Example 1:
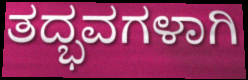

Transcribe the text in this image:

ತದ್ಭವಗಳಾಗಿ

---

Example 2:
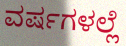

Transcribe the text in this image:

ವರ್ಷಗಳಲ್ಲೆ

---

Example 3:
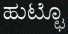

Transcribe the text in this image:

ಹುಟ್ಟೊ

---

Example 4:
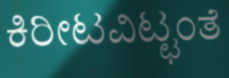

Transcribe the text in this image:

ಕಿರೀಟವಿಟ್ಟಂತೆ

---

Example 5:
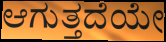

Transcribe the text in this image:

ಆಗುತ್ತದೆಯೇ